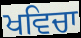
ਖਵਿਚਾ